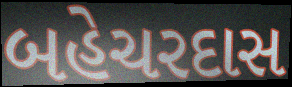
બહેચરદાસ